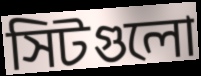
সিটগুলো